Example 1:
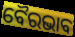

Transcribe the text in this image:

ବୈରଭାବ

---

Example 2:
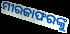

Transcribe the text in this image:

ମୀରଜାଫରଙ୍କୁ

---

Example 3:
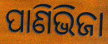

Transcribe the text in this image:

ପାଣିଭିଜା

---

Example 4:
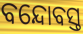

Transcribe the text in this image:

ବନ୍ଦୋବସ୍ତ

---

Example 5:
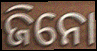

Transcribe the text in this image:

ଜିନୋ